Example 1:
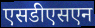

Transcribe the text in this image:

एसडीएसएन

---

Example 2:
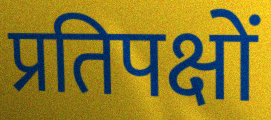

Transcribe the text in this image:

प्रतिपक्षों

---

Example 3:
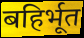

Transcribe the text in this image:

बहिर्भूत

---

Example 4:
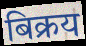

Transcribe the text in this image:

बिक्रय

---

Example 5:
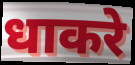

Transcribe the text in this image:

धाकरे